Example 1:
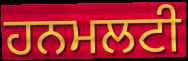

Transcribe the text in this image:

ਹਨਮਲਟੀ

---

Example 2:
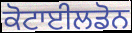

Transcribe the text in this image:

ਕੋਟਾਈਲਡੋਨ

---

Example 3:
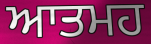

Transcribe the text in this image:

ਆਤਮਹ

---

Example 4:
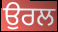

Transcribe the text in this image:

ਉਰਲ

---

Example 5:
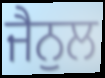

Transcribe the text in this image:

ਜੈਨੁਲ